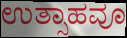
ಉತ್ಸಾಹವೂ